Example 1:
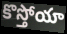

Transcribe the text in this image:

కొస్తోయా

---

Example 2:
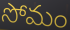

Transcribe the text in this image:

సోమం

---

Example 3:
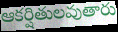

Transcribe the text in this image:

ఆకర్షితులవుతారు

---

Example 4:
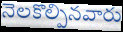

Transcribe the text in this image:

నెలకొల్పినవారు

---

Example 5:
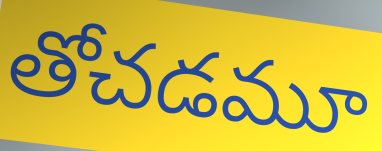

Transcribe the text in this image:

తోచడమూ